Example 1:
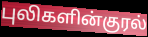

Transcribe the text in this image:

புலிகளின்குரல்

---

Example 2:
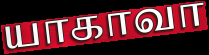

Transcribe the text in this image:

யாகாவா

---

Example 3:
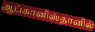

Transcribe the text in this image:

ஆப்கானிஸ்தானில்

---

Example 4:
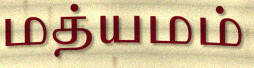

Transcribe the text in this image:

மத்யமம்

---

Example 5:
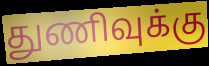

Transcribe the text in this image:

துணிவுக்கு